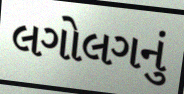
લગોલગનું